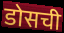
डोसची